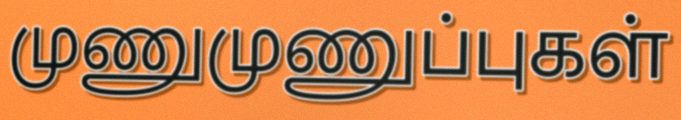
முணுமுணுப்புகள்